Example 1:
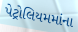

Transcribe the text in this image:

પેટ્રોલિયમમાંના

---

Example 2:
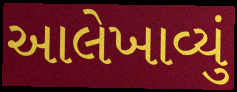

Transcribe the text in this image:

આલેખાવ્યું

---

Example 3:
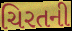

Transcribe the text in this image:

ચિરતની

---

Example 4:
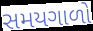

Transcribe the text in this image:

સમયગાળો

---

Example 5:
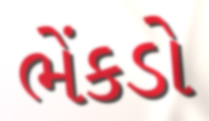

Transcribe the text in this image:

ભેંકડો